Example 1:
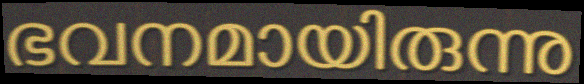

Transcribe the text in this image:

ഭവനമായിരുന്നു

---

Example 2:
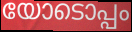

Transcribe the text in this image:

യോടൊപ്പം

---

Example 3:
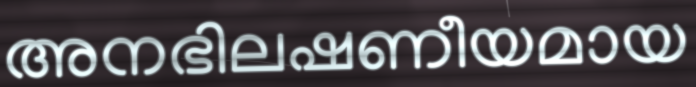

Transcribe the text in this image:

അനഭിലഷണീയമായ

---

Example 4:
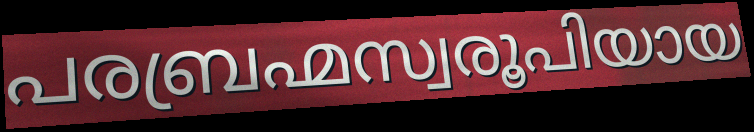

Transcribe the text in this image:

പരബ്രഹ്മസ്വരൂപിയായ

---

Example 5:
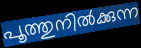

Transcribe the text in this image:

പൂത്തുനിൽക്കുന്ന